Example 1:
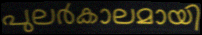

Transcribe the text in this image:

പുലർകാലമായി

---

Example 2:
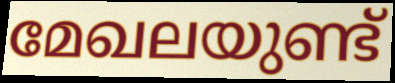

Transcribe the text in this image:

മേഖലയുണ്ട്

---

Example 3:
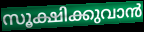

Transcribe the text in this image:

സൂക്ഷിക്കുവാൻ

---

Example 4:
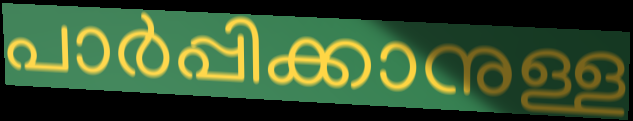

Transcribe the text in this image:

പാർപ്പിക്കാനുള്ള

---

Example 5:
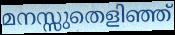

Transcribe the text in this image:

മനസ്സുതെളിഞ്ഞ്